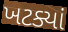
ખટક્યાં